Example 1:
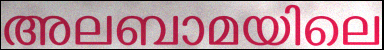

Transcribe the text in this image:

അലബാമയിലെ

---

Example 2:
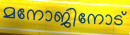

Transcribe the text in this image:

മനോജിനോട്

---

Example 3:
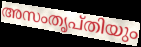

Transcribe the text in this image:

അസംതൃപ്തിയും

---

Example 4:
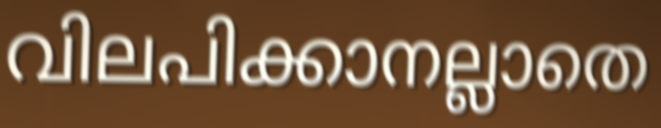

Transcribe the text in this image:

വിലപിക്കാനല്ലാതെ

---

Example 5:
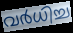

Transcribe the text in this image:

വർധിച്ച